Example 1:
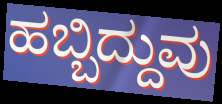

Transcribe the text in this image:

ಹಬ್ಬಿದ್ದುವು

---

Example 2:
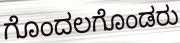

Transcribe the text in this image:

ಗೊಂದಲಗೊಂಡರು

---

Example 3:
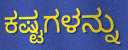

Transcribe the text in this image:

ಕಷ್ಟಗಳನ್ನು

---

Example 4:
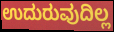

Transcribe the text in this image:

ಉದುರುವುದಿಲ್ಲ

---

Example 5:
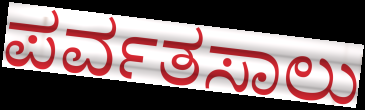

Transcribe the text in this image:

ಪರ್ವತಸಾಲು